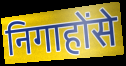
निगाहोंसे